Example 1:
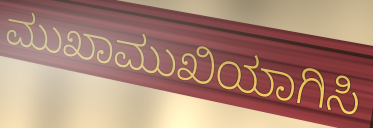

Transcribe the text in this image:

ಮುಖಾಮುಖಿಯಾಗಿಸಿ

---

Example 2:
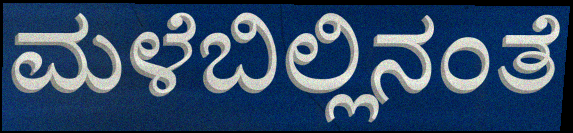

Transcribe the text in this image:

ಮಳೆಬಿಲ್ಲಿನಂತೆ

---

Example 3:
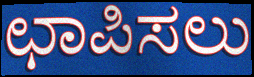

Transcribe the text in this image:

ಛಾಪಿಸಲು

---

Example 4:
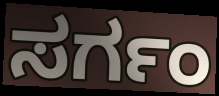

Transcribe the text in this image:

ಸರ್ಗಂ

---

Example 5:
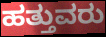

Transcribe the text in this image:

ಹತ್ತುವರು